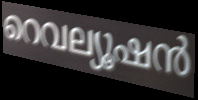
റെവല്യൂഷൻ